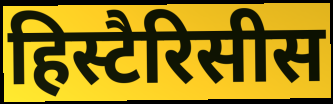
हिस्टैरिसीस